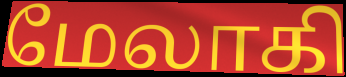
மேலாகி